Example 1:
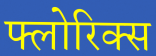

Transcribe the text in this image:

फ्लोरिक्स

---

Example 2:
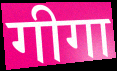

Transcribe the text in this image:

गीगा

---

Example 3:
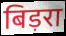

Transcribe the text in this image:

बिड़रा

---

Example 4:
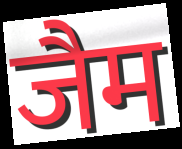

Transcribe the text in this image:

जैम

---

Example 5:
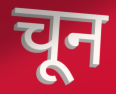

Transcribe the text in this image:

चून